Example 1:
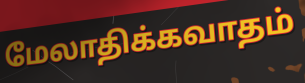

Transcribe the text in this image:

மேலாதிக்கவாதம்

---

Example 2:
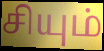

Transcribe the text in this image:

சியும்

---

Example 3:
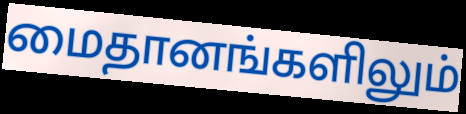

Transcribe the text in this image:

மைதானங்களிலும்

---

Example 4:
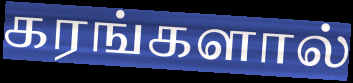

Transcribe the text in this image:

கரங்களால்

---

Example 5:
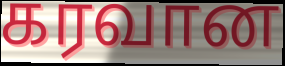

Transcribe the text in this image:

கரவான